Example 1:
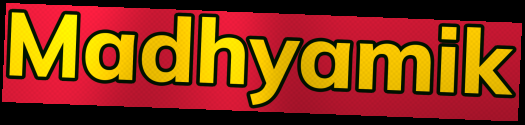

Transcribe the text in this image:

Madhyamik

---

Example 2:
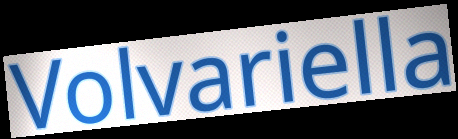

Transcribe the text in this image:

Volvariella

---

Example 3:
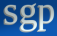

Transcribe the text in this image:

sgp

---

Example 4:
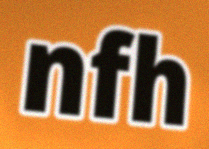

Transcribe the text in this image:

nfh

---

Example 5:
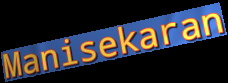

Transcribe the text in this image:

Manisekaran